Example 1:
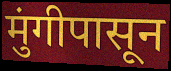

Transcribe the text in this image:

मुंगीपासून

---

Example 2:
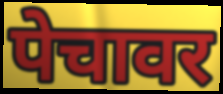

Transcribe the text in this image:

पेचावर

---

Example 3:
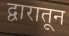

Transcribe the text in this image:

द्वारातून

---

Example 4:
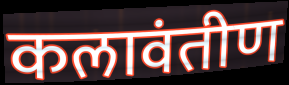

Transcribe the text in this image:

कलावंतीण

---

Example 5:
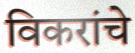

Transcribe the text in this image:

विकरांचे